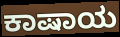
ಕಾಷಾಯ